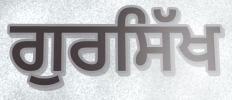
ਗੁਰਸਿੱਖ